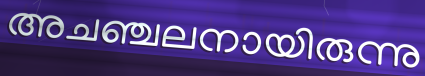
അചഞ്ചലനായിരുന്നു